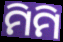
ମିମି